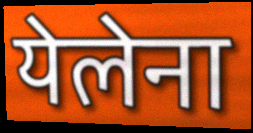
येलेना